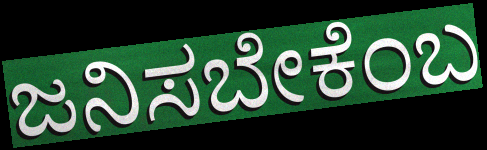
ಜನಿಸಬೇಕೆಂಬ